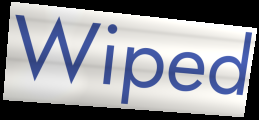
Wiped